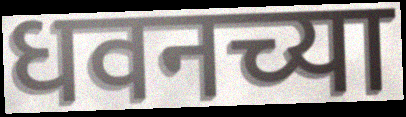
धवनच्या